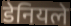
डेनियले